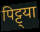
पिट्ट्या